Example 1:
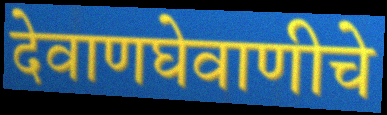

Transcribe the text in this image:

देवाणघेवाणीचे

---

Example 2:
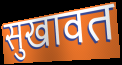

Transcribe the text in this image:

सुखावत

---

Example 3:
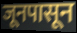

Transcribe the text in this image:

जूनपासून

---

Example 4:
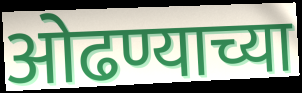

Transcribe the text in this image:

ओढण्याच्या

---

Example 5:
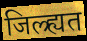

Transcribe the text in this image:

जिल्ह्यत